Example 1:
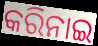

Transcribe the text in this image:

କରିନାଇ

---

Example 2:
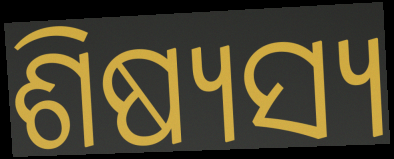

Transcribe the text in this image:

ଶିଷ୍ୟସ୍ୟ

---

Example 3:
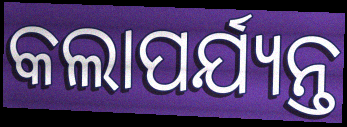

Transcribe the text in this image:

କଲାପର୍ଯ୍ୟନ୍ତ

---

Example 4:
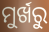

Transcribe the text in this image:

ମୁର୍ଖରୁ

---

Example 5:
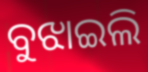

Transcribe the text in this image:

ବୁଝାଇଲି